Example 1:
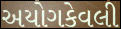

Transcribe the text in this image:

અયોગકેવલી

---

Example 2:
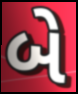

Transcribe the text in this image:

બે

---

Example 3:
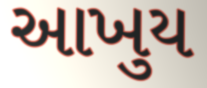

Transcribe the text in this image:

આખુય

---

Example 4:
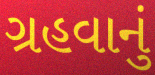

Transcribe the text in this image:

ગ્રહવાનું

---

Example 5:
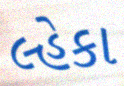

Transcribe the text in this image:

લ્હેકા